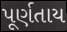
પૂર્ણતાય